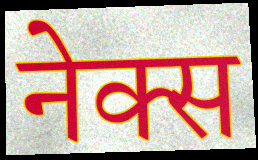
नेक्स